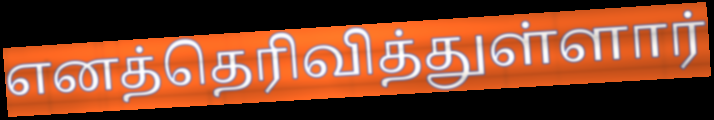
எனத்தெரிவித்துள்ளார்